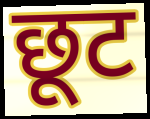
छूट